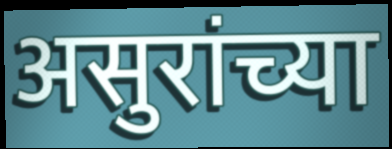
असुरांच्या